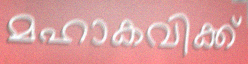
മഹാകവിക്ക്